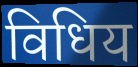
विधिय